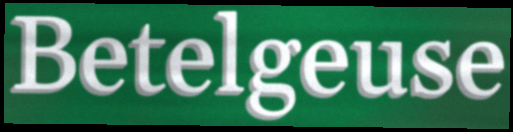
Betelgeuse